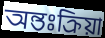
অন্তঃক্রিয়া